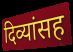
दिव्यांसह